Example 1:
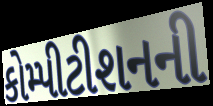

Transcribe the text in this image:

કોમ્પીટીશનની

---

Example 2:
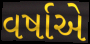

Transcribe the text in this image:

વર્ષાએ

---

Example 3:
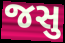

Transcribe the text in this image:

જસુ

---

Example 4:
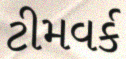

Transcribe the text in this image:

ટીમવર્ક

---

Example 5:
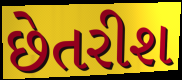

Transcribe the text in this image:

છેતરીશ